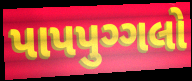
પાપપુગ્ગલો